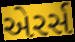
એરર્સ